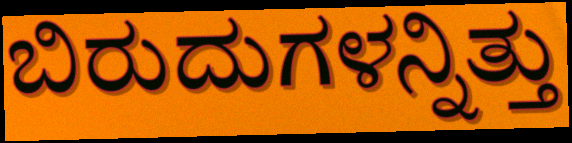
ಬಿರುದುಗಳನ್ನಿತ್ತು